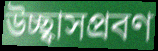
উচ্ছ্বাসপ্রবণ